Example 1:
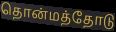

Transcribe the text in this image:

தொன்மத்தோடு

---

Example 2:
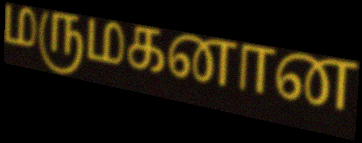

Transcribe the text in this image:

மருமகனான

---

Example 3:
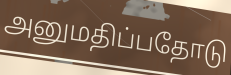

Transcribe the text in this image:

அனுமதிப்பதோடு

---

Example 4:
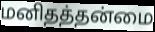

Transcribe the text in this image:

மனிதத்தன்மை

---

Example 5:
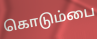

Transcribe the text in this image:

கொடும்பை